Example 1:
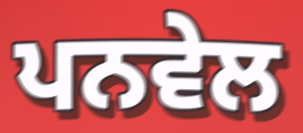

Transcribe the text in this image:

ਪਨਵੇਲ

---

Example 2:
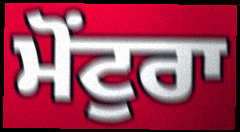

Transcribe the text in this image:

ਮੋਂਟੁਰਾ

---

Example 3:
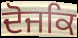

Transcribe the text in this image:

ਦੋਜਕਿ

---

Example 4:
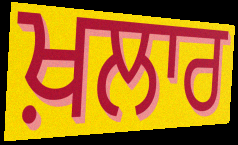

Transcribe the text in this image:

ਖ਼ਲਾਰ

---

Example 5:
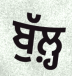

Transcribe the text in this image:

ਬੁੱਲ਼੍ਹ